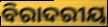
ବିରାଦରୀୟ